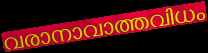
വരാനാവാത്തവിധം